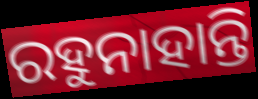
ରହୁନାହାନ୍ତି